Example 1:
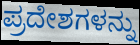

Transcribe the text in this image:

ಪ್ರದೇಶಗಳನ್ನು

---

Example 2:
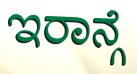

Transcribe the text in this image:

ಇರಾನ್ಗೆ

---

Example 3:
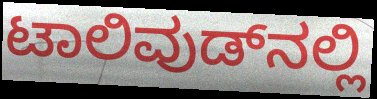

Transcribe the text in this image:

ಟಾಲಿವುಡ್‌ನಲ್ಲಿ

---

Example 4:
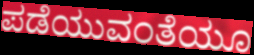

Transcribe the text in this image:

ಪಡೆಯುವಂತೆಯೂ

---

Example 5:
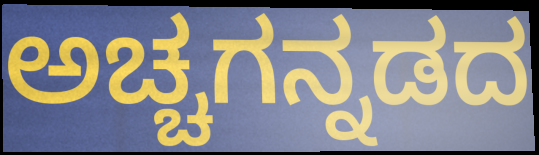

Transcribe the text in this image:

ಅಚ್ಚಗನ್ನಡದ